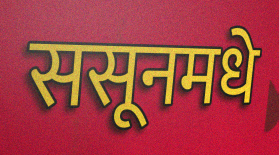
ससूनमधे